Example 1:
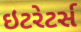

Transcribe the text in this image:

ઇટરેટર્સ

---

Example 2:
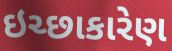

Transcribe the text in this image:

ઇચ્છાકારેણ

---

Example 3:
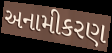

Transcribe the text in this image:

અનામીકરણ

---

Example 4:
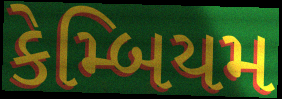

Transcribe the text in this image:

કેમ્બિયમ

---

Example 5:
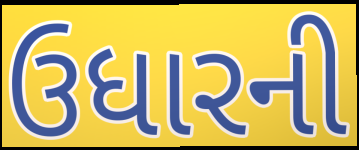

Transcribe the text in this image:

ઉધારની